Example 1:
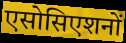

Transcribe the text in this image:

एसोसिएशनों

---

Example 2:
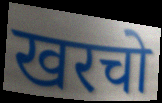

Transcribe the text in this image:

खरचो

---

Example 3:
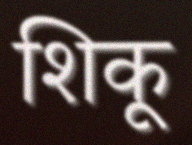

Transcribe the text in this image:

शिकू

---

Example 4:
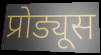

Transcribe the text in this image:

प्रोड्यूस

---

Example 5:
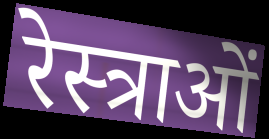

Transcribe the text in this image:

रेस्त्राओं